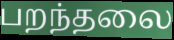
பறந்தலை